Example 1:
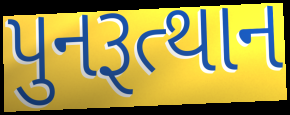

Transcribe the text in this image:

પુનરૂત્થાન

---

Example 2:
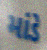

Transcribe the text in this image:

માંડે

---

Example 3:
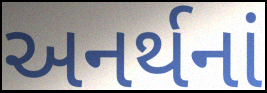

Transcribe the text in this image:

અનર્થનાં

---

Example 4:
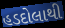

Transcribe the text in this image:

હડદોલાથી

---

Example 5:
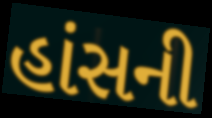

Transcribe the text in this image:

હાંસની